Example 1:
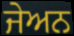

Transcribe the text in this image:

ਜੇਅਨ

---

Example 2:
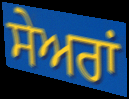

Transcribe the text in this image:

ਸੇਅਰਾਂ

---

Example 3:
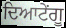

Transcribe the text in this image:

ਦਿਆਟੇਂਗੂ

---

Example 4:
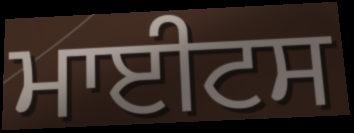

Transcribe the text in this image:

ਮਾਈਟਸ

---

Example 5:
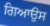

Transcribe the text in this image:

ਗਿਆਉਸ